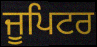
ਜੂਪਿਟਰ